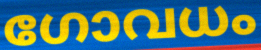
ഗോവധം